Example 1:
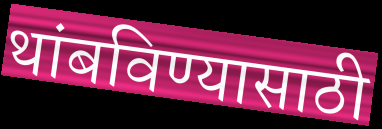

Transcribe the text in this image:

थांबविण्यासाठी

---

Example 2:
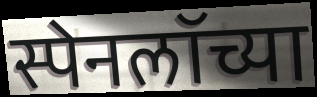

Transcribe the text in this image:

स्पेनलॉच्या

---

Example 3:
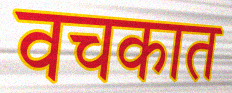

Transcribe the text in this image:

वचकात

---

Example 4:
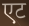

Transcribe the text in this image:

एट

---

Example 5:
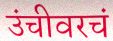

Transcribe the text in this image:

उंचीवरचं